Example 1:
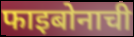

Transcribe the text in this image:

फाइबोनाची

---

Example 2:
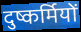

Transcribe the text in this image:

दुष्कर्मियों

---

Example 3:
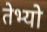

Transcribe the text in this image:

तेभ्यो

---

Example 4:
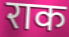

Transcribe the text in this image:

राक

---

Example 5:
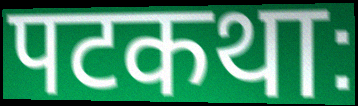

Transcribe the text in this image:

पटकथाः